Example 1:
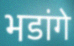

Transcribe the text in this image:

भडांगे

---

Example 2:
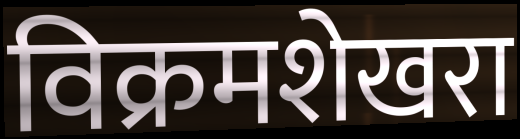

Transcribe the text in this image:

विक्रमशेखरा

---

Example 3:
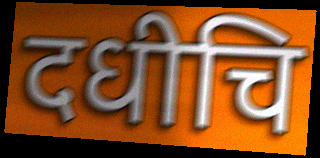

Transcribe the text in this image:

दधीचि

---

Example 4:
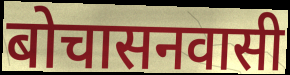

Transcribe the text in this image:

बोचासनवासी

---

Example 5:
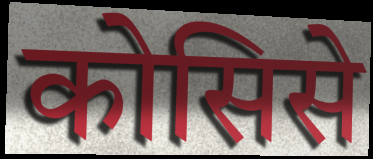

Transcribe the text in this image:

कोसिसे